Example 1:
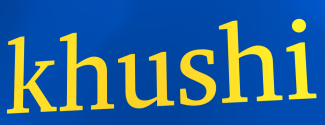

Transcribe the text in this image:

khushi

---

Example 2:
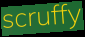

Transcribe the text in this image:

scruffy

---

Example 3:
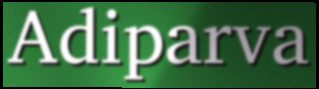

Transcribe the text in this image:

Adiparva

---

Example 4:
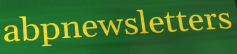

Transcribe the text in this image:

abpnewsletters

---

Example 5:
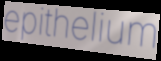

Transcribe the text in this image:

epithelium